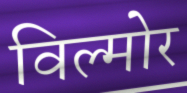
विल्मोर